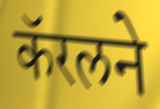
कॅरलने